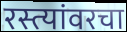
रस्त्यांवरचा